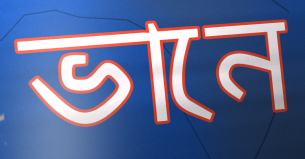
ভানে